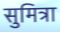
सुमित्रा